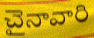
చైనావారి